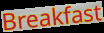
Breakfast